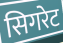
सिगरेट